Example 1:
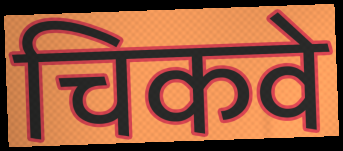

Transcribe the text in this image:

चिकवे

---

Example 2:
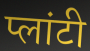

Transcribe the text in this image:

प्लांटी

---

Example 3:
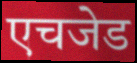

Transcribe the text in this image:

एचजेड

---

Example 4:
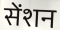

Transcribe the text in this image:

सेंशन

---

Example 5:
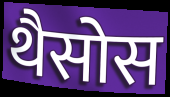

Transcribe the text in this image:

थैसोस